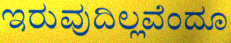
ಇರುವುದಿಲ್ಲವೆಂದೂ